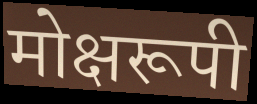
मोक्षरूपी